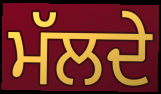
ਮੱਲਦੇ